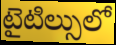
టైటిల్సులో